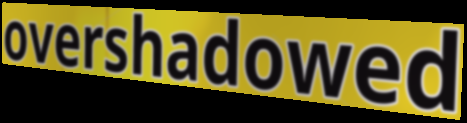
overshadowed